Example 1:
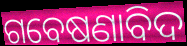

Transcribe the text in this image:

ଗବେଷଣାବିଦ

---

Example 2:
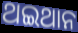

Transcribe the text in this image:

ଥଇଥାନ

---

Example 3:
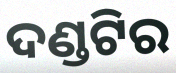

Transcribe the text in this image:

ଦଣ୍ଡଟିର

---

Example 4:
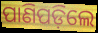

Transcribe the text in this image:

ପାଣିପଡ଼ିଲେ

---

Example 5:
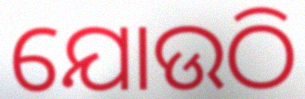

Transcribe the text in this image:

ଯୋଉଠି